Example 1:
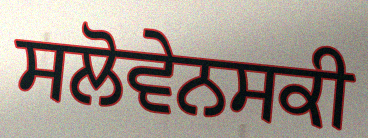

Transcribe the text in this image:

ਸਲੋਵੇਨਸਕੀ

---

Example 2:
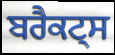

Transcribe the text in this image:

ਬਰੈਕਟ੍ਸ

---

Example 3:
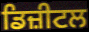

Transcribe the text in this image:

ਡਿਜ਼ੀਟਲ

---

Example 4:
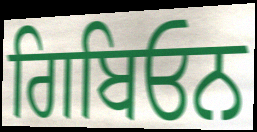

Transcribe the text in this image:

ਗਿਬਿਓਨ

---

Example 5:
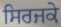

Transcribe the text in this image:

ਸਿਰਜਕੇ